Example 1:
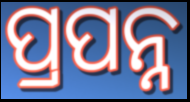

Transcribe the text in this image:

ପ୍ରପନ୍ନ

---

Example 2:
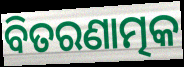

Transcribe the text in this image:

ବିତରଣାତ୍ମକ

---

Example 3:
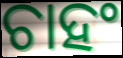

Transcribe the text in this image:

ଚାହଂ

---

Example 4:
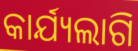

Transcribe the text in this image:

କାର୍ଯ୍ୟଲାଗି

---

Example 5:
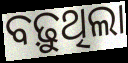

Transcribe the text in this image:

ବଢ଼ୁଥିଲା